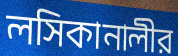
লসিকানালীর